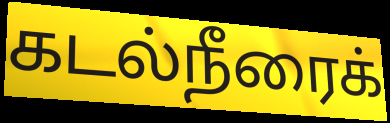
கடல்நீரைக்